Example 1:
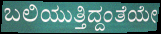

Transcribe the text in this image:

ಬಲಿಯುತ್ತಿದ್ದಂತೆಯೇ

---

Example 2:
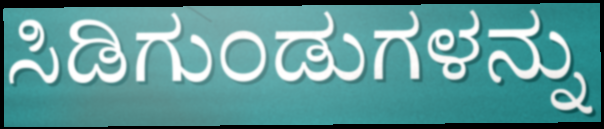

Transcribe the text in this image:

ಸಿಡಿಗುಂಡುಗಳನ್ನು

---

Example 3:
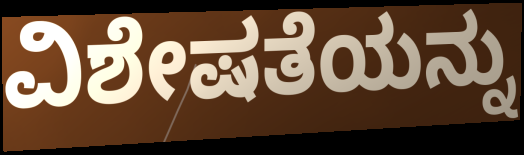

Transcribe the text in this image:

ವಿಶೇಷತೆಯನ್ನು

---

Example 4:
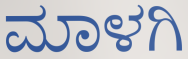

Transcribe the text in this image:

ಮಾಳಗಿ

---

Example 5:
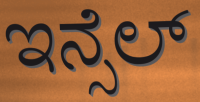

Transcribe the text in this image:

ಇನ್ಸೆಲ್